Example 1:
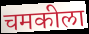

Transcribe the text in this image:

चमकीला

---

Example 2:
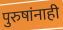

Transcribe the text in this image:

पुरुषांनाही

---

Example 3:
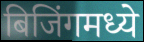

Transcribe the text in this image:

बिजिंगमध्ये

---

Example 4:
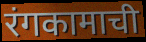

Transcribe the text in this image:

रंगकामाची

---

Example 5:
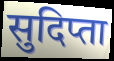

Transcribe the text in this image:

सुदिप्ता